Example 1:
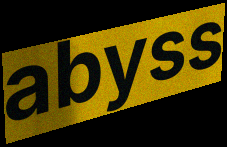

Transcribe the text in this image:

abyss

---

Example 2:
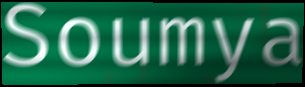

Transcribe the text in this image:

Soumya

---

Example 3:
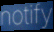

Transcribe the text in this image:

notify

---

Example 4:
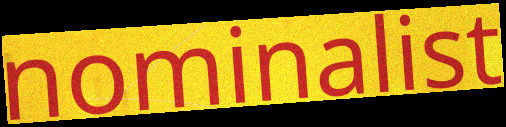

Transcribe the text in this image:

nominalist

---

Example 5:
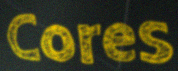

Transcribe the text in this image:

Cores